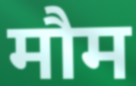
मौम